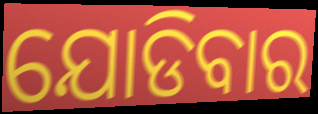
ଯୋଡିବାର